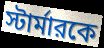
স্টার্মারকে